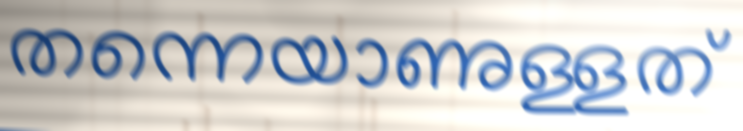
തന്നെയാണുള്ളത്